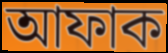
আফাক